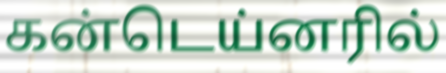
கன்டெய்னரில்